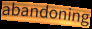
abandoning